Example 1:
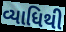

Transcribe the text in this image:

વ્યાધિથી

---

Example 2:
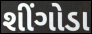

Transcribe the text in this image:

શીંગોડા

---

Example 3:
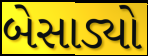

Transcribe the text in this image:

બેસાડ્યો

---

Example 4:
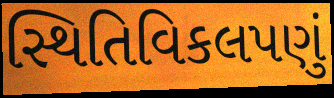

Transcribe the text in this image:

સ્થિતિવિકલપણું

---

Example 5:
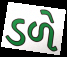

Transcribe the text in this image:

ડળે